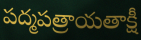
పద్మపత్రాయతాక్షీ